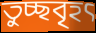
তুচ্ছবৃহৎ